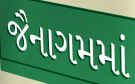
જૈનાગમમાં